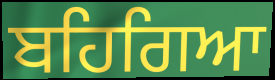
ਬਹਿਗਿਆ